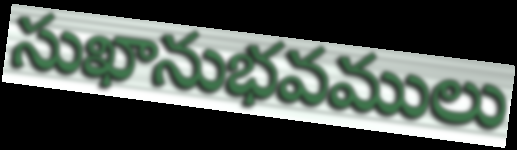
సుఖానుభవములు